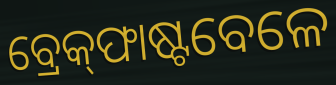
ବ୍ରେକ୍‌ଫାଷ୍ଟବେଳେ